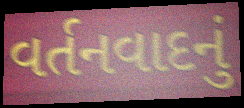
વર્તનવાદનું